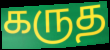
கருத